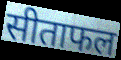
सीताफल